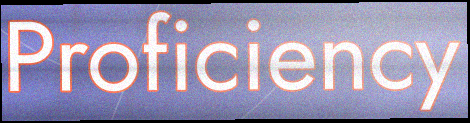
Proficiency